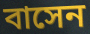
বাসেন